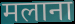
मलाना